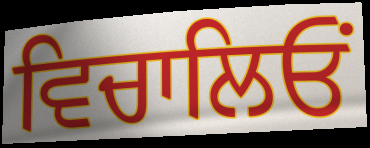
ਵਿਚਾਲਿਓਂ